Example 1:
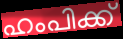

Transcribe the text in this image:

ഹംപിക്ക്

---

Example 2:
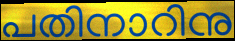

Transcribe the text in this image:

പതിനാറിനു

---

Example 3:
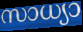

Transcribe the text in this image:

സാധ്യാ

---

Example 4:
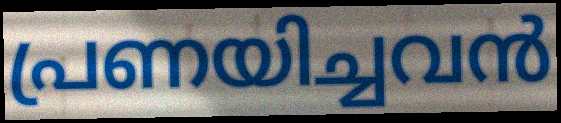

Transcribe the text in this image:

പ്രണയിച്ചവൻ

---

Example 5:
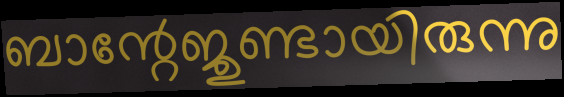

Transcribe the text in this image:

ബാന്റേജുണ്ടായിരുന്നു